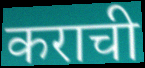
कराची